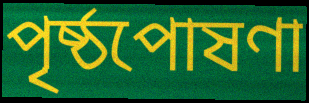
পৃষ্ঠপোষণা